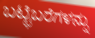
ಬಟ್ಟೆಬರೆಗಳನ್ನು